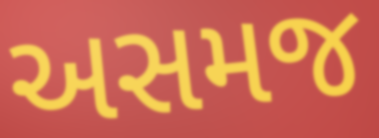
અસમજ